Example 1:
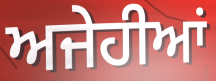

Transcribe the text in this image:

ਅਜੇਹੀਆਂ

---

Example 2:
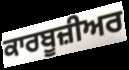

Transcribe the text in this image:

ਕਾਰਬੂਜ਼ੀਅਰ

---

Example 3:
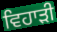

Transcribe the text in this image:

ਵਿਹਾੜੀ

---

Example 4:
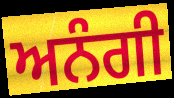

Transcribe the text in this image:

ਅਨੰਗੀ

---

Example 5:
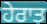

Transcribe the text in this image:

ਹੇਰਾਤ